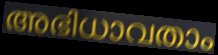
അഭിധാവതാം